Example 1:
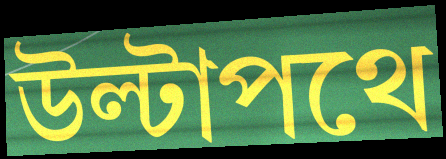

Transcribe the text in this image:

উল্টাপথে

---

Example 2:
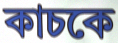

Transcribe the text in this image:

কাচকে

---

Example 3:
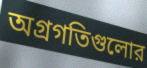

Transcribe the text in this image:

অগ্রগতিগুলোর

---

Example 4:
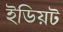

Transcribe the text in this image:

ইডিয়ট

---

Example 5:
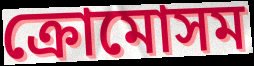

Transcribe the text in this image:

ক্রোমোসম